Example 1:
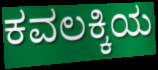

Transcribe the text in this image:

ಕವಲಕ್ಕಿಯ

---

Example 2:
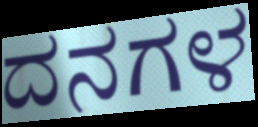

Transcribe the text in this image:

ದನಗಳ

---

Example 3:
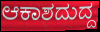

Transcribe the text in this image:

ಆಕಾಶದುದ್ದ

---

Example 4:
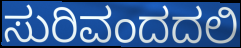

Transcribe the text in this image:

ಸುರಿವಂದದಲಿ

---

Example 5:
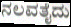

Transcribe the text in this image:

ನಲವತೈದು